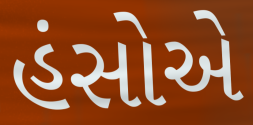
હંસોએ